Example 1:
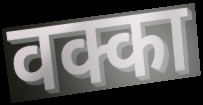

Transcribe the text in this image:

वक्का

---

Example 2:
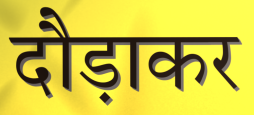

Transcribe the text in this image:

दौड़ाकर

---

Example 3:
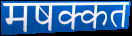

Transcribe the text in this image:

मषक्कत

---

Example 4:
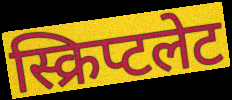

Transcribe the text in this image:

स्क्रिप्टलेट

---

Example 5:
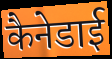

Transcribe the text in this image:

कैनेडाई